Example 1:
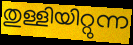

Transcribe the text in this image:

തുള്ളിയിറ്റുന്ന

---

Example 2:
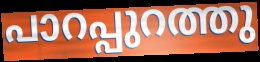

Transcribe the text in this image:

പാറപ്പുറത്തു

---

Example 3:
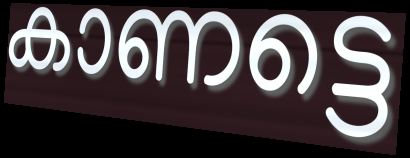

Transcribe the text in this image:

കാണട്ടെ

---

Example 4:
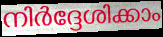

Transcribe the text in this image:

നിർദ്ദേശിക്കാം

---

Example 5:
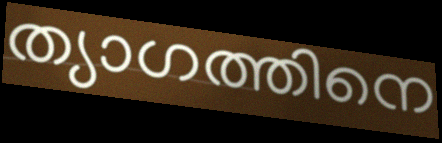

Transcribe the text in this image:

ത്യാഗത്തിനെ